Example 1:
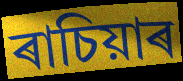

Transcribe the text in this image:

ৰাচিয়াৰ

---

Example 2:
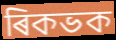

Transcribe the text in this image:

ৰিকভক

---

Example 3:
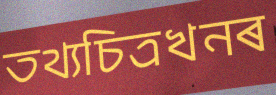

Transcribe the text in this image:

তথ্যচিত্ৰখনৰ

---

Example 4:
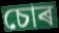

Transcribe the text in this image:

চোৰ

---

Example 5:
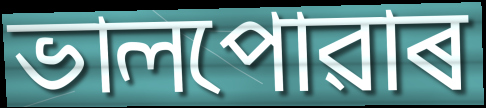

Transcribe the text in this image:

ভালপোৱাৰ